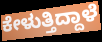
ಕೇಳುತ್ತಿದ್ದಾಳೆ